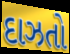
દાઝતો